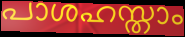
പാശഹസ്താം